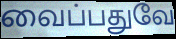
வைப்பதுவே